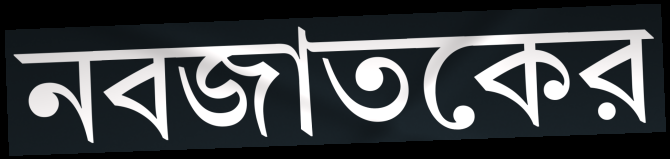
নবজাতকের